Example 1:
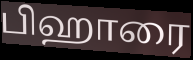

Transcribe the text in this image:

பிஹாரை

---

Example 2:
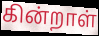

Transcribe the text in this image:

கின்றாள்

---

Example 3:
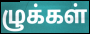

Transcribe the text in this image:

ழுக்கள்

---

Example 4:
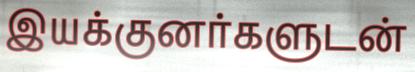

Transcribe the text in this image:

இயக்குனர்களுடன்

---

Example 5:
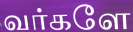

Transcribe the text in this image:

வர்களே